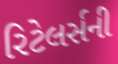
રિટેલર્સની